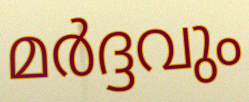
മർദ്ദവും